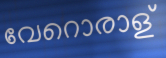
വേറൊരാള്